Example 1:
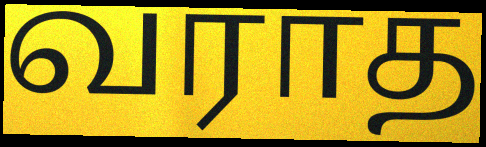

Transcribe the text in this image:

வராத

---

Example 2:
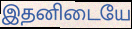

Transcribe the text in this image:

இதனிடையே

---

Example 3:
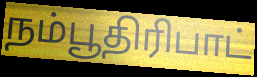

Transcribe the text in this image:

நம்பூதிரிபாட்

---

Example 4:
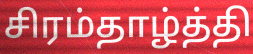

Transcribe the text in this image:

சிரம்தாழ்த்தி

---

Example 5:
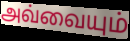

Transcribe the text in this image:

அவ்வையும்